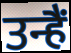
उन्‍हैं